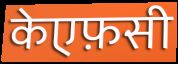
केएफ़सी